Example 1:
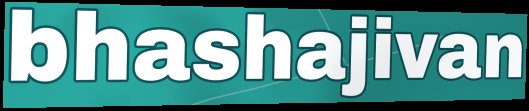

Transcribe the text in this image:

bhashajivan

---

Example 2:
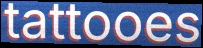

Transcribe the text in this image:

tattooes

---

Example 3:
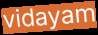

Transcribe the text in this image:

vidayam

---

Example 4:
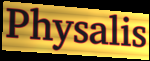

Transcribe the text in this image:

Physalis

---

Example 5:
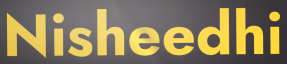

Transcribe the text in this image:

Nisheedhi